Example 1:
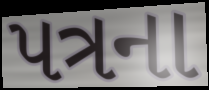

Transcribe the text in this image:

પત્રના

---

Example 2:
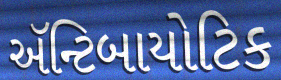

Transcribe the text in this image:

ઍન્ટિબાયોટિક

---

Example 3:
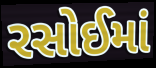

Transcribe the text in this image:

રસોઈમાં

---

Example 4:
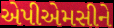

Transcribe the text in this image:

એપીએમસીને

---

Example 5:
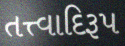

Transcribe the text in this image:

તત્ત્વાદિરૂપ